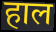
हाल